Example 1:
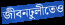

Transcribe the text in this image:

জীবনঢুলীতেও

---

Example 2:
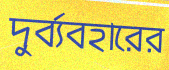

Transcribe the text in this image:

দুর্ব্যবহারের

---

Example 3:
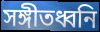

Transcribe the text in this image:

সঙ্গীতধ্বনি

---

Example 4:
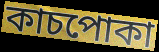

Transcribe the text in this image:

কাচপোকা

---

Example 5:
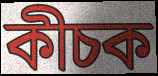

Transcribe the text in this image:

কীচক